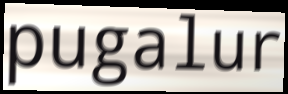
pugalur